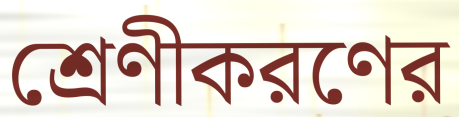
শ্রেণীকরণের